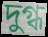
দুগ্ধ